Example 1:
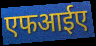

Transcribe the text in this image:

एफआईए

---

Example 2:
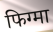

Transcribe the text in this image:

फिग्मा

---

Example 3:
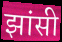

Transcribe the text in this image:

झांसी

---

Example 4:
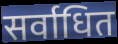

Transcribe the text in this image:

सर्वाधित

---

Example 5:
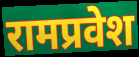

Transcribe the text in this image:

रामप्रवेश